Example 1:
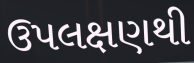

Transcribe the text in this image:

ઉપલક્ષણથી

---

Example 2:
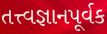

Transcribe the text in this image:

તત્ત્વજ્ઞાનપૂર્વક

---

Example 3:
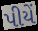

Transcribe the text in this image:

પીયેં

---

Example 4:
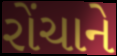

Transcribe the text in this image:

રોંચાને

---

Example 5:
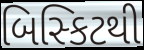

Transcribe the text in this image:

બિસ્કિટથી